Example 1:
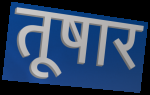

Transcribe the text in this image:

तूषार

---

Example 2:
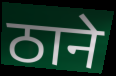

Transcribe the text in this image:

ठाने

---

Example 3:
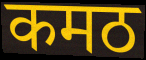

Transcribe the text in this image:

कमठ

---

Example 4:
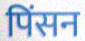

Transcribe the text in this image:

पिंसन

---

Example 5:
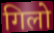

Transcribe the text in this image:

गिलो